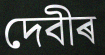
দেবীৰ